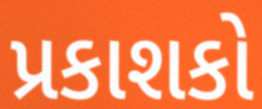
પ્રકાશકો